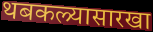
थबकल्यासारखा